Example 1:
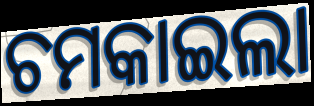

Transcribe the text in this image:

ଚମକାଇଲା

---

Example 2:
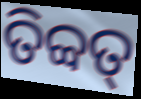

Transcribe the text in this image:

ତିବ୍ବତ୍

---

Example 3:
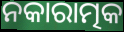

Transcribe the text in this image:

ନକାରାତ୍ମକ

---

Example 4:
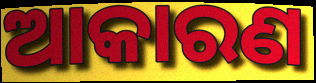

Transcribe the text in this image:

ଆକାରଣ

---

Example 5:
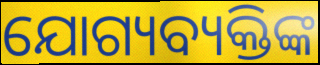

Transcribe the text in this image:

ଯୋଗ୍ୟବ୍ୟକ୍ତିଙ୍କ